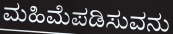
ಮಹಿಮೆಪಡಿಸುವನು